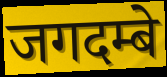
जगदम्बे